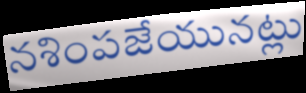
నశింపజేయునట్లు